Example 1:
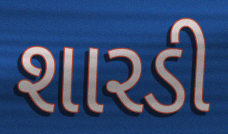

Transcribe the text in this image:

શારડી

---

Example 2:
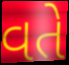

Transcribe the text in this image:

વતે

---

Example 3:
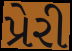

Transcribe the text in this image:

પ્રેરી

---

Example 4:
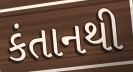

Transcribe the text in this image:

કંતાનથી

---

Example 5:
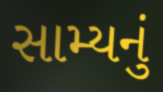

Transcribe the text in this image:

સામ્યનું